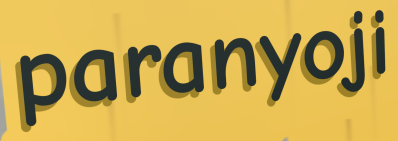
paranyoji